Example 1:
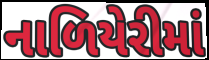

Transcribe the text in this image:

નાળિયેરીમાં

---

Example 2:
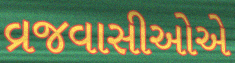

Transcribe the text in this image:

વ્રજવાસીઓએ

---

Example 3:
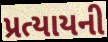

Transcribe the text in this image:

પ્રત્યાયની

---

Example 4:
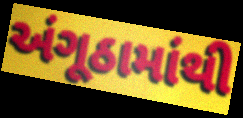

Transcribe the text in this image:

અંગૂઠામાંથી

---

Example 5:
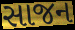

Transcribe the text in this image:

સાજન